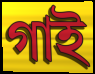
গাই